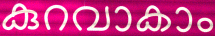
കുറവാകാം